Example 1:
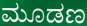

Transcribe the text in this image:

ಮೂಡಣ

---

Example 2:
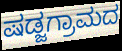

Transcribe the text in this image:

ಷಡ್ಜಗ್ರಾಮದ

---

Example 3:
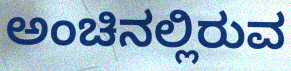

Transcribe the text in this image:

ಅಂಚಿನಲ್ಲಿರುವ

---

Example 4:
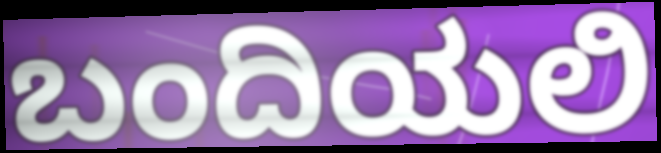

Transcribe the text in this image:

ಬಂದಿಯಲಿ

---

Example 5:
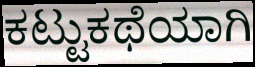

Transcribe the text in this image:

ಕಟ್ಟುಕಥೆಯಾಗಿ